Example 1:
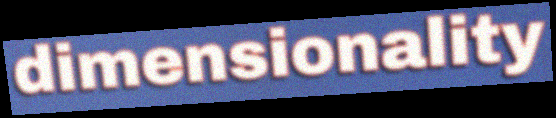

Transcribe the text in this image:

dimensionality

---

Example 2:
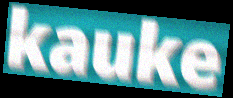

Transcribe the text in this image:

kauke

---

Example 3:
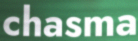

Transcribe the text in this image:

chasma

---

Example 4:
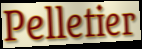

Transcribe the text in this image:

Pelletier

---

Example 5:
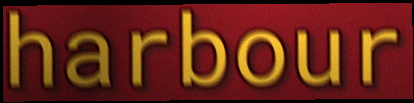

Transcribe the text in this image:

harbour